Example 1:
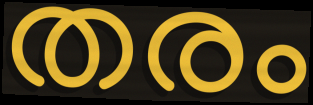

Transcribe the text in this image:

തരം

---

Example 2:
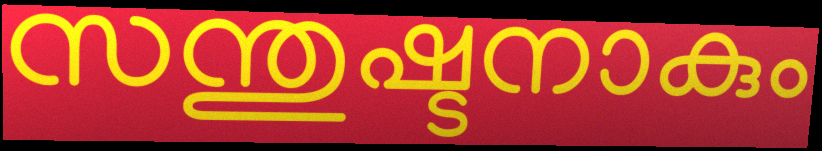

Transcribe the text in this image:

സന്തുഷ്ടനാകും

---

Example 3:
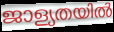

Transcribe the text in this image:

ജാള്യതയിൽ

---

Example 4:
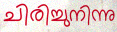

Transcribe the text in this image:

ചിരിച്ചുനിന്നു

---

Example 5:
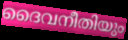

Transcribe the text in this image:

ദൈവനീതിയും